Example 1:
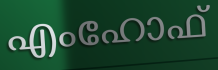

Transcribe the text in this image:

എംഹോഫ്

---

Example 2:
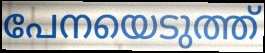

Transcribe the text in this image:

പേനയെടുത്ത്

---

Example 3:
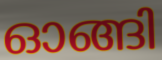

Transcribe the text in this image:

ഓങ്ങി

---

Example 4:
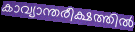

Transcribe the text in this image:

കാവ്യാന്തരീക്ഷത്തിൽ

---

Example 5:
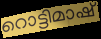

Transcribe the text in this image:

റൊട്ടിമാഷ്